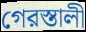
গেরস্তালী